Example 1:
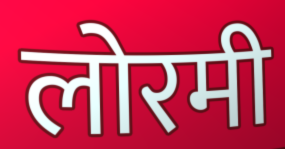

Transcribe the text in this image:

लोरमी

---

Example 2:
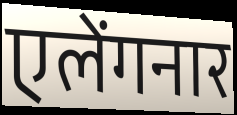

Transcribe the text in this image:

एलेंगनार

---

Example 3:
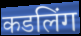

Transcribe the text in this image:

कडलिंग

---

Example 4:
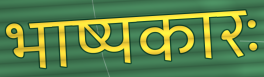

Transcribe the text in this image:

भाष्यकारः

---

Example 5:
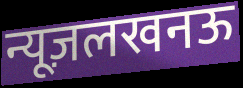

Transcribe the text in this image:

न्यूज़लखनऊ